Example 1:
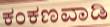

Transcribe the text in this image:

ಕಂಕಣವಾಡಿ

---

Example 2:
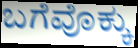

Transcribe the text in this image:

ಬಗೆವೊಕ್ಕು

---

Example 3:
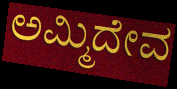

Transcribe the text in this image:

ಅಮ್ಮಿದೇವ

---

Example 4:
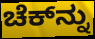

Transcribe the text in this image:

ಚೆಕ್‌ನ್ನು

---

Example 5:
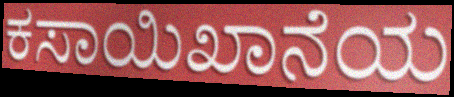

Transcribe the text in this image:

ಕಸಾಯಿಖಾನೆಯ